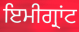
ਇਮੀਗ੍ਰਾਂਟ